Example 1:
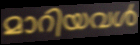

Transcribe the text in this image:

മാറിയവൾ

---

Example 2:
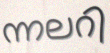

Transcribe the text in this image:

ന്നലറി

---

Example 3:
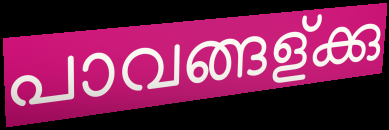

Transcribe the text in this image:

പാവങ്ങള്ക്കു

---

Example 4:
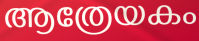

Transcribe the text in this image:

ആത്രേയകം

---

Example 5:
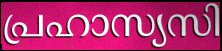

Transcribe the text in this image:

പ്രഹാസ്യസി